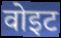
वोइट